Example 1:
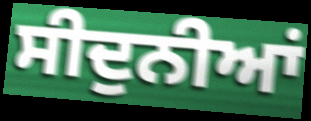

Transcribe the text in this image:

ਸੀਦੁਨੀਆਂ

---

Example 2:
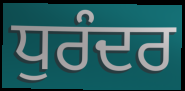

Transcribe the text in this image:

ਧੁਰੰਦਰ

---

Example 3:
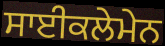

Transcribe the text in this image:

ਸਾਈਕਲੇਮੇਨ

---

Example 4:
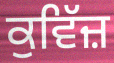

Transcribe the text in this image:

ਕੁਵਿੱਜ਼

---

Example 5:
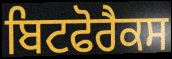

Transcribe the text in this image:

ਬਿਟਫੋਰੈਕਸ